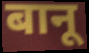
बानू